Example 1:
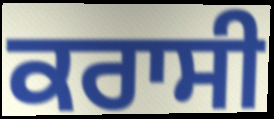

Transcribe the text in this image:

ਕਰਾਸੀ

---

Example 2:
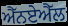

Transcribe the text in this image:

ਐੱਨਏਐੱਲ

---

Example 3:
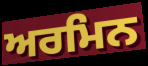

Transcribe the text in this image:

ਅਰਮਿਨ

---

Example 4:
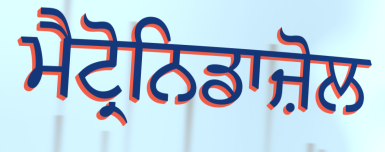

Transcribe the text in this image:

ਮੈਟ੍ਰੋਨਿਡਾਜ਼ੋਲ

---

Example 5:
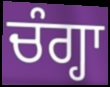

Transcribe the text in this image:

ਚੰਗ੍ਹਾ